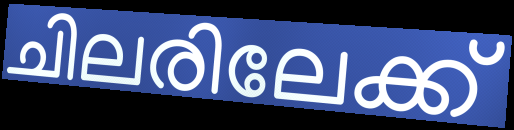
ചിലരിലേക്ക്